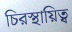
চিরস্থায়িত্ব